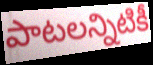
పాటలన్నిటికీ